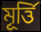
মূৰ্ত্তি